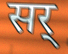
सर्